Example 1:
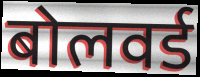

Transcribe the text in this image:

बोलवर्ड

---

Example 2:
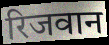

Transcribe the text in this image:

रिजवान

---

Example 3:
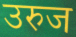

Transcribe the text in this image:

उरुज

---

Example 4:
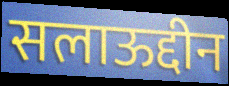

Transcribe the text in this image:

सलाऊद्दीन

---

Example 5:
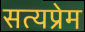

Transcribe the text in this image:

सत्यप्रेम